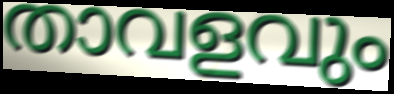
താവളവും